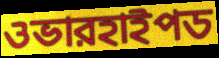
ওভারহাইপড